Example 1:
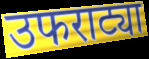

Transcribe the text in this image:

उफराट्या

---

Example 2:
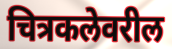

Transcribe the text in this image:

चित्रकलेवरील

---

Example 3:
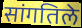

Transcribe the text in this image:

सांगतिले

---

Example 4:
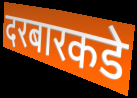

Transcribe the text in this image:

दरबारकडे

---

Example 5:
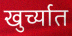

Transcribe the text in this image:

खुर्च्यात